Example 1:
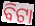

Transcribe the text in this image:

ବିଟା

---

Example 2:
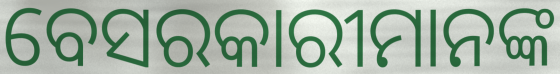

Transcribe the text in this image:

ବେସରକାରୀମାନଙ୍କ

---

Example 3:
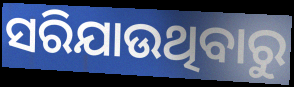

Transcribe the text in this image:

ସରିଯାଉଥିବାରୁ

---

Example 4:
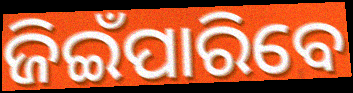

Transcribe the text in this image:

ଜିଇଁପାରିବେ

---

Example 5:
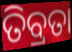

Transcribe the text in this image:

ତିବ୍ରତା